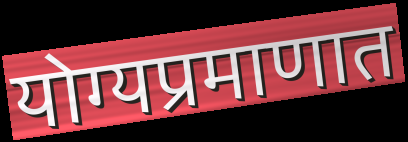
योग्यप्रमाणात